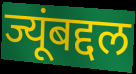
ज्यूंबद्दल